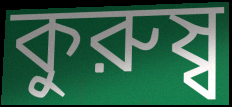
কুরুষ্ব